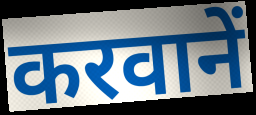
करवानें